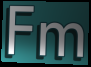
Fm